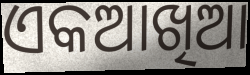
ଏକଆଖିଆ